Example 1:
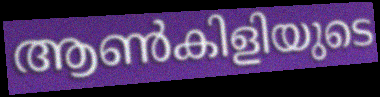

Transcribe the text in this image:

ആൺകിളിയുടെ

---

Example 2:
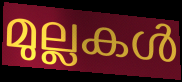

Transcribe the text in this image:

മുല്ലകൾ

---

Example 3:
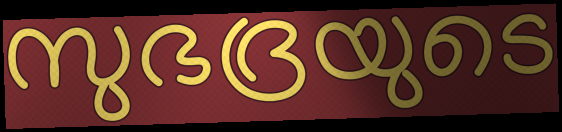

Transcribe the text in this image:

സുഭദ്രയുടെ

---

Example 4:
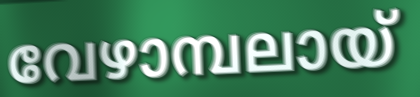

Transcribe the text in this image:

വേഴാമ്പലായ്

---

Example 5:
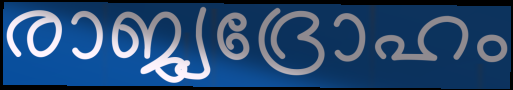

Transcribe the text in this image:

രാജ്യദ്രോഹം